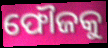
ଫୌଜକୁ